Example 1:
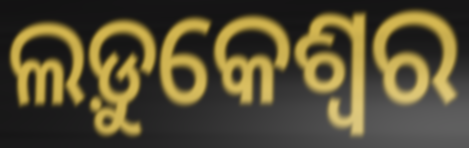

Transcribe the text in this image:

ଲଡ଼ୁକେଶ୍ୱର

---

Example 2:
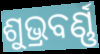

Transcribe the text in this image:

ଶୁଭ୍ରବର୍ଣ୍ଣ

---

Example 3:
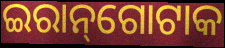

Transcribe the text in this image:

ଇରାନ୍‌ଗୋଟାକ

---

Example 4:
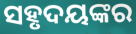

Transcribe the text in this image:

ସହୃଦୟଙ୍କର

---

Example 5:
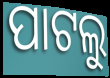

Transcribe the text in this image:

ପାଟଲୁ